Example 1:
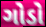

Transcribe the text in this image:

ગોડો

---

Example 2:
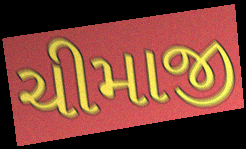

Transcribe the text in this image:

ચીમાજી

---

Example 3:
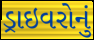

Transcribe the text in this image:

ડ્રાઇવરોનું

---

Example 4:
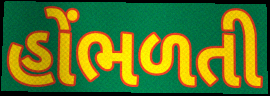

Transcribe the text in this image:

હોંભળતી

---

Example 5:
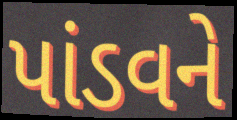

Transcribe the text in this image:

પાંડવને